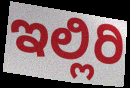
ಇಲ್ಲಿರಿ